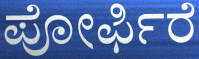
ಪೋರ್ಫಿರೆ